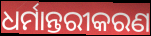
ଧର୍ମାନ୍ତରୀକରଣ